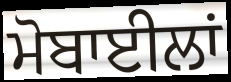
ਮੋਬਾਈਲਾਂ